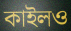
কাইলও